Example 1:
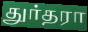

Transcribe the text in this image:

துர்தரா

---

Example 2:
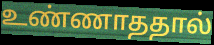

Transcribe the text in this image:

உண்ணாததால்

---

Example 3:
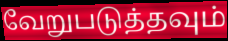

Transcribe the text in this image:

வேறுபடுத்தவும்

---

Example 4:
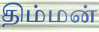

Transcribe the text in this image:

திம்மன்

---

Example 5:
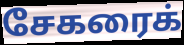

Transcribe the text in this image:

சேகரைக்